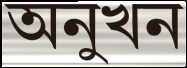
অনুখন